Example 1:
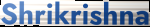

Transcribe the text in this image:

Shrikrishna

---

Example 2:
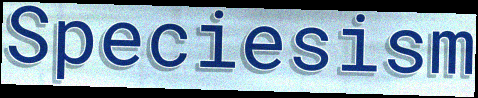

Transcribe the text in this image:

Speciesism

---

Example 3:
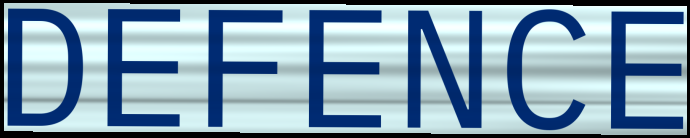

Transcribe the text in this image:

DEFENCE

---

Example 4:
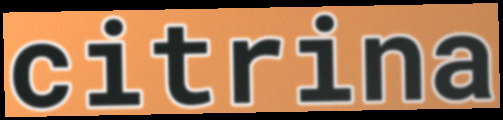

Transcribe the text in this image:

citrina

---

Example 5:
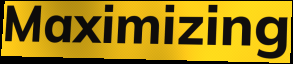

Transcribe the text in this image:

Maximizing